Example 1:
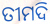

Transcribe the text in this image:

ତୀମଦି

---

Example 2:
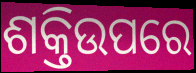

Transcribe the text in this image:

ଶକ୍ତିଉପରେ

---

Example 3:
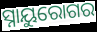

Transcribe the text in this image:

ସ୍ନାୟୁରୋଗର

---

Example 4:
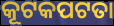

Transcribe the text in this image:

କୂଟକପଟତା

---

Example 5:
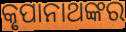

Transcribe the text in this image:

କୃପାନାଥଙ୍କର